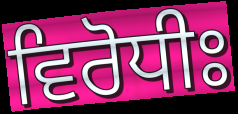
ਵਿਰੋਧੀਃ